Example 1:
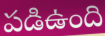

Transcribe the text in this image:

పడిఉంది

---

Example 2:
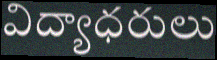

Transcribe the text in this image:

విద్యాధరులు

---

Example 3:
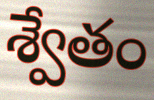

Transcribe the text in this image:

శ్వేతం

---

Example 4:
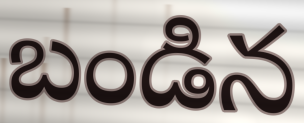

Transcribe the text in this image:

బండిన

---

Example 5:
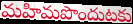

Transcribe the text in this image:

మహిమపొందుటకు